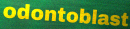
odontoblast